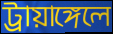
ট্রায়াঙ্গেলে